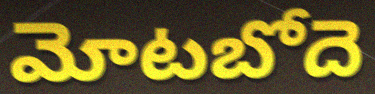
మోటబోదె